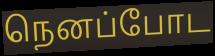
நெனப்போட